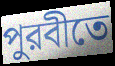
পুরবীতে